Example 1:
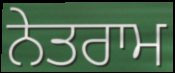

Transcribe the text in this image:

ਨੇਤਰਾਮ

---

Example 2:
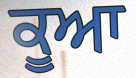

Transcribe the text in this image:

ਕੂਆ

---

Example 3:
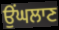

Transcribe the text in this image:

ਉਂਘਲਾਣ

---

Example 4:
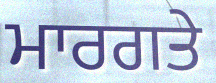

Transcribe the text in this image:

ਮਾਰਗਤੇ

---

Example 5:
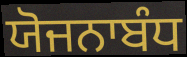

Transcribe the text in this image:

ਯੋਜਨਾਬੰਧ